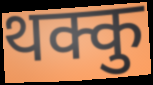
थक्कु